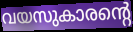
വയസുകാരന്റെ